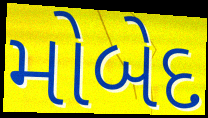
મોબેદ